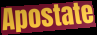
Apostate